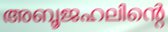
അബൂജഹലിന്റെ